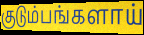
குடும்பங்களாய்